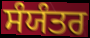
ਸੰਯੰਤਰ